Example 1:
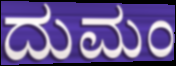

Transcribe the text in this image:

ದುಮಂ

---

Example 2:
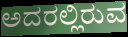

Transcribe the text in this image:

ಅದರಲ್ಲಿರುವ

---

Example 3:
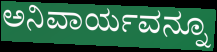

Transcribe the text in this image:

ಅನಿವಾರ್ಯವನ್ನೂ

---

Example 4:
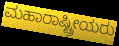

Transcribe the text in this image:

ಮಹಾರಾಷ್ಟ್ರೀಯರು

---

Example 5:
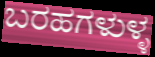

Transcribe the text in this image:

ಬರಹಗಳುಳ್ಳ